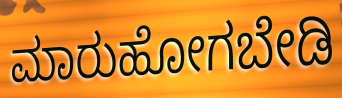
ಮಾರುಹೋಗಬೇಡಿ